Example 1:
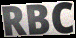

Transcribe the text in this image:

RBC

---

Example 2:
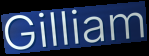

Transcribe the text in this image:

Gilliam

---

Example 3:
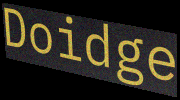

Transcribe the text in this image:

Doidge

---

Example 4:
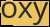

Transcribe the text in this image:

oxy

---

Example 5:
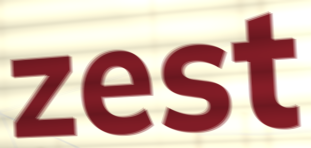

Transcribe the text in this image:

zest